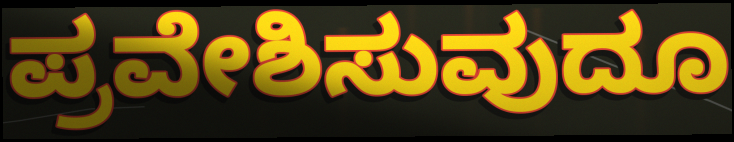
ಪ್ರವೇಶಿಸುವುದೂ